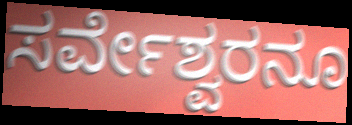
ಸರ್ವೇಶ್ವರನೂ